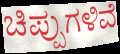
ಚಿಪ್ಪುಗಳಿವೆ